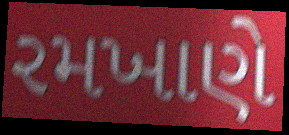
રમખાણે